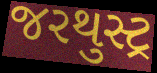
જરથુસ્ટ્ર